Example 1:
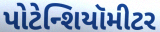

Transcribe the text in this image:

પોટેન્શિયૉમીટર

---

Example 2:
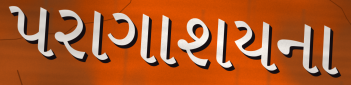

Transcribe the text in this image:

પરાગાશયના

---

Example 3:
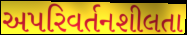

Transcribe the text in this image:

અપરિવર્તનશીલતા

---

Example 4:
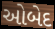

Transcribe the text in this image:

ઓબેદ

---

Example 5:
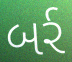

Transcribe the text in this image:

બર્ર